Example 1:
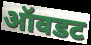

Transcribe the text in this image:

ऑवडट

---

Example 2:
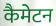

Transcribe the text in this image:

कैमेटन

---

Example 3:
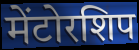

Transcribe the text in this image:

मेंटोरशिप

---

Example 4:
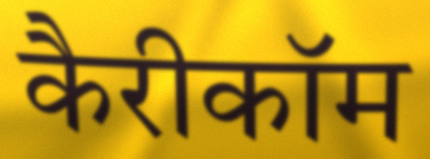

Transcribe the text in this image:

कैरीकॉम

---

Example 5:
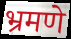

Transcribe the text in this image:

भ्रमणे